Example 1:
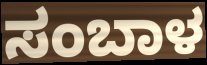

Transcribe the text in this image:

ಸಂಬಾಳ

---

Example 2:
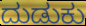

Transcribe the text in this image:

ದುಡುಕು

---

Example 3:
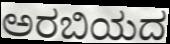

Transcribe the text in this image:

ಅರಬಿಯದ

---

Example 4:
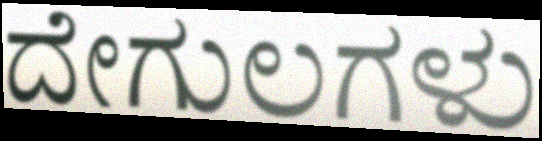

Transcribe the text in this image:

ದೇಗುಲಗಳು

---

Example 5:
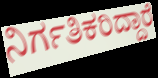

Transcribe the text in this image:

ನಿರ್ಗತಿಕರಿದ್ದಾರೆ